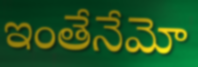
ఇంతేనేమో